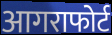
आगराफोर्ट